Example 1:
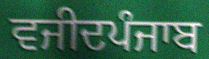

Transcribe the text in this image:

ਵਜੀਦਪੰਜਾਬ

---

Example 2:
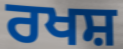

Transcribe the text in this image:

ਰਖਸ਼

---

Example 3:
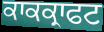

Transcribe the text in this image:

ਕਾਕਕ੍ਰਾਫਟ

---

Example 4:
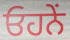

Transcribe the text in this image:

ਓਹਨੇੰ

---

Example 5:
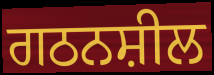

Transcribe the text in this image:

ਗਠਨਸ਼ੀਲ